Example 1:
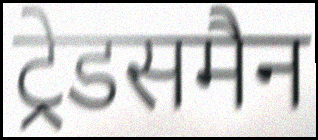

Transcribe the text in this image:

ट्रेडसमैन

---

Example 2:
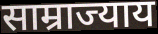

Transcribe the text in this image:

साम्राज्याय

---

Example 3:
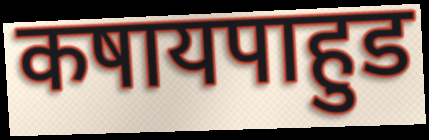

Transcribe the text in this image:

कषायपाहुड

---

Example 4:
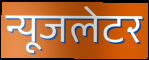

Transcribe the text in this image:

न्यूजलेटर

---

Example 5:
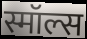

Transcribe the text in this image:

स्मॉल्स